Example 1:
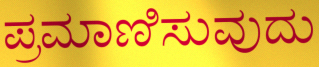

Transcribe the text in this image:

ಪ್ರಮಾಣಿಸುವುದು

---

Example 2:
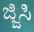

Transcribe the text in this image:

ಜ್ಜಿಸಿ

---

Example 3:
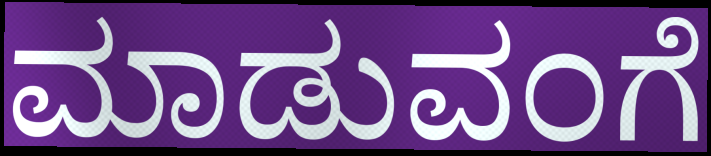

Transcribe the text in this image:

ಮಾಡುವಂಗೆ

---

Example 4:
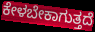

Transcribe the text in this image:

ಕೇಳಬೇಕಾಗುತ್ತದೆ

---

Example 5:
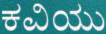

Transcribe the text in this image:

ಕವಿಯು